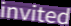
invited